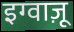
इग्वाज़ू